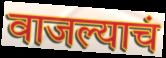
वाजल्याचं